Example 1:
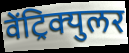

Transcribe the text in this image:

वेंट्रिक्युलर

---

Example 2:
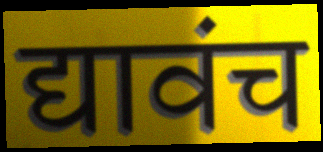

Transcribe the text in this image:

द्यावंच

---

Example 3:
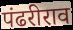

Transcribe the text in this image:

पंढरीराव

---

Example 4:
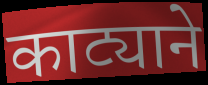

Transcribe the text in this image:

काट्याने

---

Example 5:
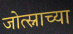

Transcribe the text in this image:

जोत्स्नाच्या